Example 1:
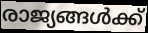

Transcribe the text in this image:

രാജ്യങ്ങൾക്ക്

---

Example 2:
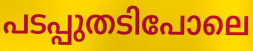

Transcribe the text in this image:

പടപ്പുതടിപോലെ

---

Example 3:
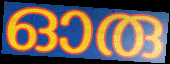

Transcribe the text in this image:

ഓരു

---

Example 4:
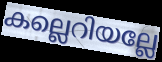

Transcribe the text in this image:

കല്ലെറിയല്ലേ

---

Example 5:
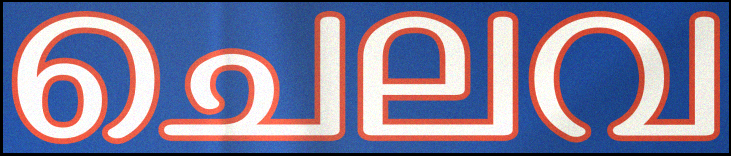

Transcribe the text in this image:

ചെലവ